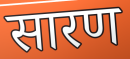
सारण